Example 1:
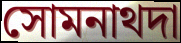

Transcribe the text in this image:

সোমনাথদা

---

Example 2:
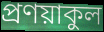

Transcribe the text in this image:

প্রণয়াকুল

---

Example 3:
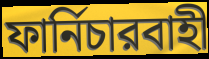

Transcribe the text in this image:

ফার্নিচারবাহী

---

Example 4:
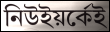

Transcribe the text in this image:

নিউইয়র্কেই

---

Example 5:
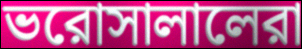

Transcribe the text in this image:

ভরোসালালেরা